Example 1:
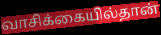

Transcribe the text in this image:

வாசிக்கையில்தான்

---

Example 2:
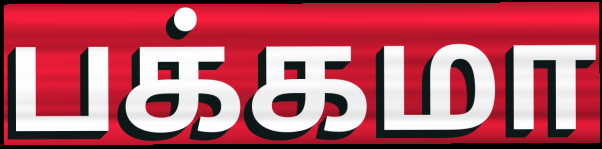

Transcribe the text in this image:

பக்கமா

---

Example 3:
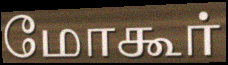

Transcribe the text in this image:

மோகூர்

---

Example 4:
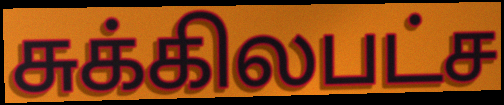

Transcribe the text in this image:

சுக்கிலபட்ச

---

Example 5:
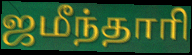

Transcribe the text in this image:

ஜமீந்தாரி